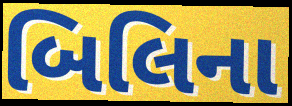
બિલિના